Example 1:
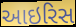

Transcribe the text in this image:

આઇરિસ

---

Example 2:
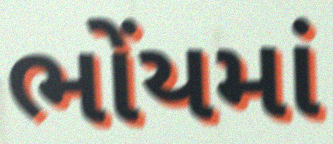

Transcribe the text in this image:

ભોંયમાં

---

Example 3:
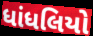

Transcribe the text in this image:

ધાંધલિયો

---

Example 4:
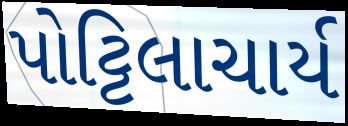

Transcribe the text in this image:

પોટ્ટિલાચાર્ય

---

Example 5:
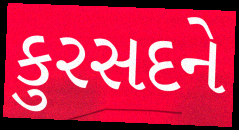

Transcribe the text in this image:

કુરસદને